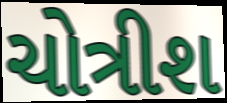
ચોત્રીશ